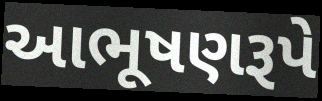
આભૂષણરૂપે